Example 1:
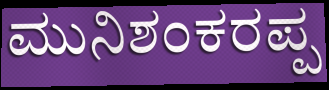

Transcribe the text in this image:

ಮುನಿಶಂಕರಪ್ಪ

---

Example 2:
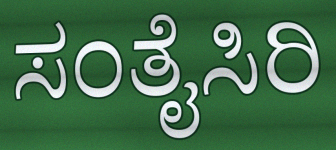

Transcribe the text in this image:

ಸಂತೈಸಿರಿ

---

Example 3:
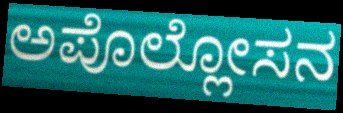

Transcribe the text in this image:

ಅಪೊಲ್ಲೋಸನ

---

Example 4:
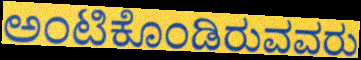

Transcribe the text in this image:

ಅಂಟಿಕೊಂಡಿರುವವರು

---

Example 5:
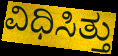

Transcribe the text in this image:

ವಿಧಿಸಿತ್ತು